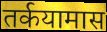
तर्कयामास